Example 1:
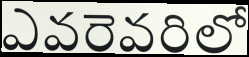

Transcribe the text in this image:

ఎవరెవరిలో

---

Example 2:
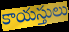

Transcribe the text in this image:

కాయస్తులు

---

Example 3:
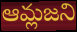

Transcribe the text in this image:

ఆమ్లజని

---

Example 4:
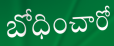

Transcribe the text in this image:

బోధించారో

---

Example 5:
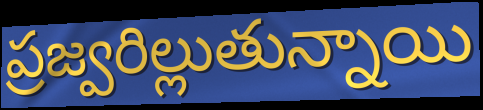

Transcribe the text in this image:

ప్రజ్వరిల్లుతున్నాయి